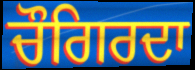
ਚੌਗਿਰਦਾ